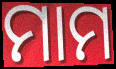
ମାମ